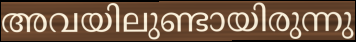
അവയിലുണ്ടായിരുന്നു